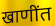
खाणींत